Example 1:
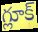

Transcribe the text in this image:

గ్లూక్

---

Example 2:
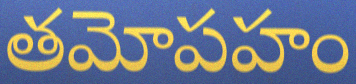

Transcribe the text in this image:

తమోపహం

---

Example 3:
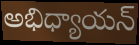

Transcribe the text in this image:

అభిధ్యాయన్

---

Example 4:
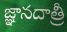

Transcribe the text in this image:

జ్ఞానదాత్రీ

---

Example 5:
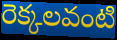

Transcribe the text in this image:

రెక్కలవంటి